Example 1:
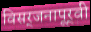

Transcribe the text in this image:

विसर्जनापूर्वी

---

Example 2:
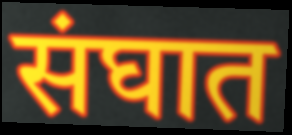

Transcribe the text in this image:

संघात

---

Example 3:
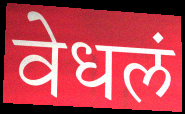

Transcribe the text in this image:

वेधलं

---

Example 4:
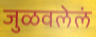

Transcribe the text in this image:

जुळवलेलं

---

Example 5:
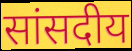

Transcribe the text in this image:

सांसदीय